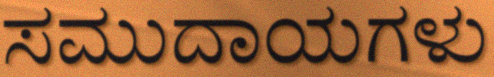
ಸಮುದಾಯಗಳು